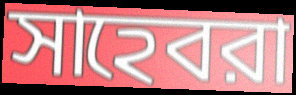
সাহেবরা